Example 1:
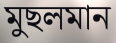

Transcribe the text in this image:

মুছলমান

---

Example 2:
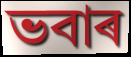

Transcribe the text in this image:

ভবাৰ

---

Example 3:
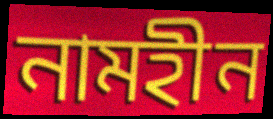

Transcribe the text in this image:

নামহীন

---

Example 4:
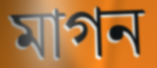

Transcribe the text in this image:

মাগন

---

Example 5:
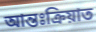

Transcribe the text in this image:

আন্তঃক্ৰিয়াত